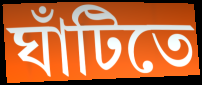
ঘাঁটিতে